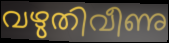
വഴുതിവീണു